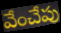
వేంచేపు